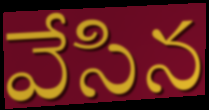
వేసిన